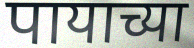
पायाच्या